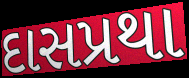
દાસપ્રથા